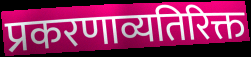
प्रकरणाव्यतिरिक्त